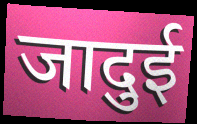
जादुई